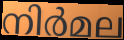
നിർമല